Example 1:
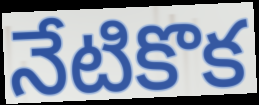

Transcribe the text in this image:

నేటికొక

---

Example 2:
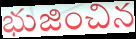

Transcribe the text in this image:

భుజించిన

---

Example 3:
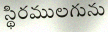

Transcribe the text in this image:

స్థిరములగును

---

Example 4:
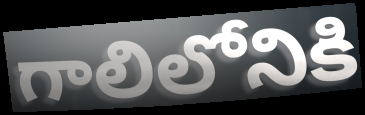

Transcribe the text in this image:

గాలిలోనికి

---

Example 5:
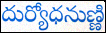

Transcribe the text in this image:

దుర్యోధనుణ్ణి